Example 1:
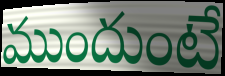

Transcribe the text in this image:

ముందుంటే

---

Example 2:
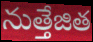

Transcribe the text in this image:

నుత్తేజిత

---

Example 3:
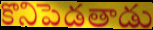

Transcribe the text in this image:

కొనిపెడతాడు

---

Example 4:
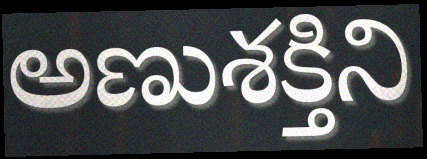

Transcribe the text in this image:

అణుశక్తిని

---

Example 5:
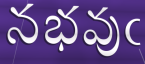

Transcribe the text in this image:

నభవుఁ